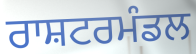
ਰਾਸ਼ਟਰਮੰਡਲ